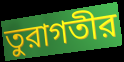
তুরাগতীর